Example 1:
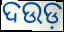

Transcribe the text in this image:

ଦଉଡ଼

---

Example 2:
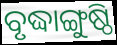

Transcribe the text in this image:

ବୃଦ୍ଧାଙ୍ଗୁଷ୍ଠି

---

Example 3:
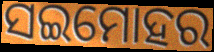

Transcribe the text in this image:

ସଇମୋହର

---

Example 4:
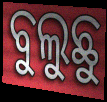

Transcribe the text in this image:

ବୁଲୁଛୁ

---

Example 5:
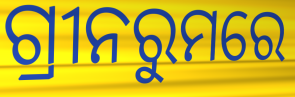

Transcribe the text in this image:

ଗ୍ରୀନରୁମରେ